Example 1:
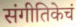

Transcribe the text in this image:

संगीतिकेचं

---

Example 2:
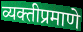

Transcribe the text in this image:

व्यक्तीप्रमाणे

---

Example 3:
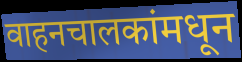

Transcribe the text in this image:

वाहनचालकांमधून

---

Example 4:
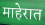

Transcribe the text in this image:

माहेरात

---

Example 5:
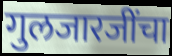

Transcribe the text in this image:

गुलजारजींचा